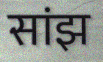
सांझ